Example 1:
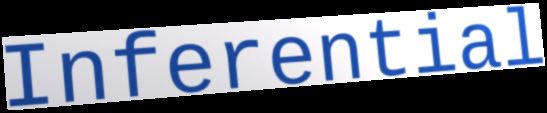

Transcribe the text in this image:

Inferential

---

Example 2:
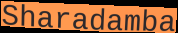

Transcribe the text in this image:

Sharadamba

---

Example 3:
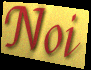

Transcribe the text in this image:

Noi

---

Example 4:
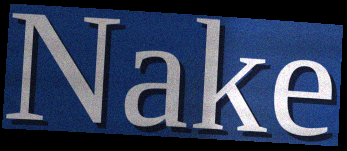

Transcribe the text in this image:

Nake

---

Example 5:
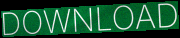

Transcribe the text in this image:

DOWNLOAD